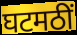
घटमठीं